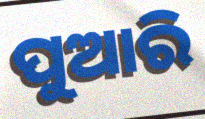
ପୁଆରି